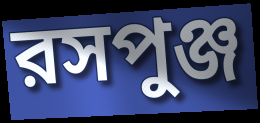
রসপুঞ্জ